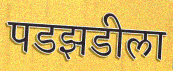
पडझडीला